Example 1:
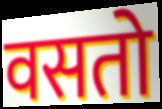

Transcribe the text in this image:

वसतो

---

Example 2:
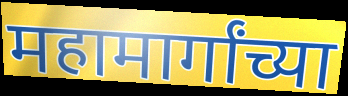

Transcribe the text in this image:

महामार्गांच्या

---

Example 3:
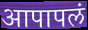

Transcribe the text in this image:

आपापलं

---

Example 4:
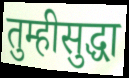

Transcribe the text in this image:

तुम्हीसुद्धा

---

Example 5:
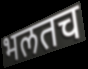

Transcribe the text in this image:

भलतच